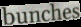
bunches